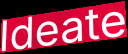
Ideate